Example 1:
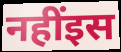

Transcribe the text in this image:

नहींइस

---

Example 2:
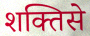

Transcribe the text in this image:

शक्तिसे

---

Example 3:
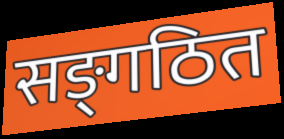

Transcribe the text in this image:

सङ्गठित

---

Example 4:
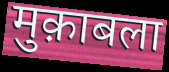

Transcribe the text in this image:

मुक़ाबला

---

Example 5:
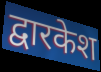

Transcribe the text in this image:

द्वारकेश